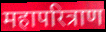
महापरित्राण